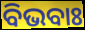
ବିଭବାଃ